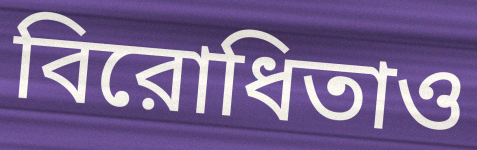
বিরোধিতাও